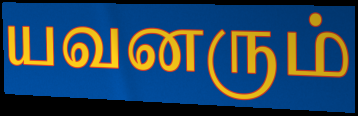
யவனரும்